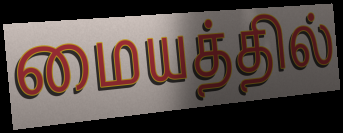
மையத்தில்